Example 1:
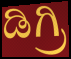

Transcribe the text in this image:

ಡಿಗ್ರಿ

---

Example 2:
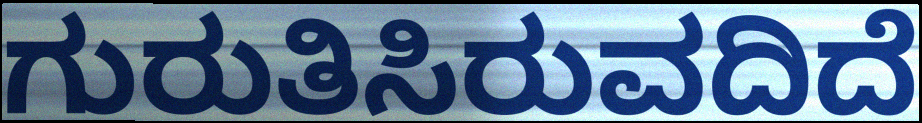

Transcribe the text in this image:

ಗುರುತಿಸಿರುವದಿದೆ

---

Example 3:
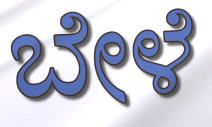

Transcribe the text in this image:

ಬೇಳೆ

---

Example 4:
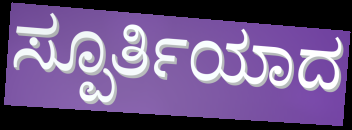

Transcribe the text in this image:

ಸ್ಪೂರ್ತಿಯಾದ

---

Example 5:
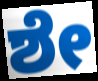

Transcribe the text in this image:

ಶೇ